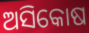
ଅସିକୋଷ